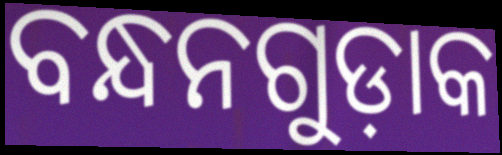
ବନ୍ଧନଗୁଡ଼ାକ